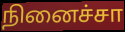
நினைச்சா